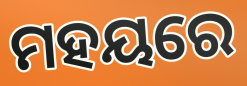
ମହୟରେ